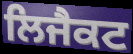
ਲਿਜੈਕਟ